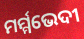
ମର୍ମ୍ମଭେଦୀ